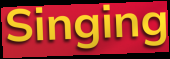
Singing